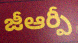
జీఆర్పీ